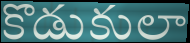
కొడుకులా